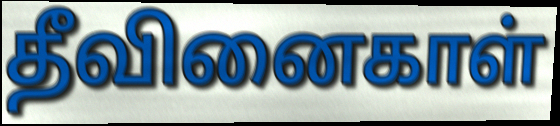
தீவினைகாள்